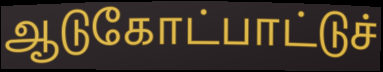
ஆடுகோட்பாட்டுச்